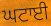
ਘਟਾਈ